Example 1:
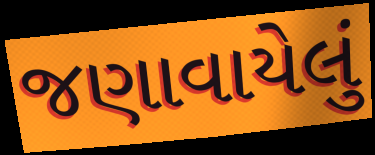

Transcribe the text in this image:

જણાવાયેલું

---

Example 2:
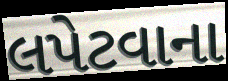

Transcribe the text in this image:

લપેટવાના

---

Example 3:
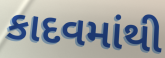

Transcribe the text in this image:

કાદવમાંથી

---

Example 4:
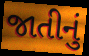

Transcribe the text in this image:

જાતીનું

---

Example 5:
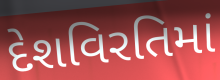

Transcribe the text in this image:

દેશવિરતિમાં